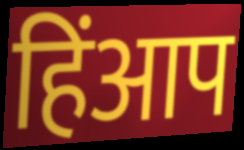
हिंआप